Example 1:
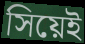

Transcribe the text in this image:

সিয়েই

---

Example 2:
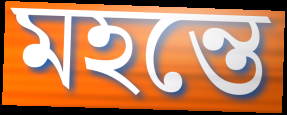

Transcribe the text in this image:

মহন্তে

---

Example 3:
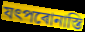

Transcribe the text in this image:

যৎপৰোনাস্তি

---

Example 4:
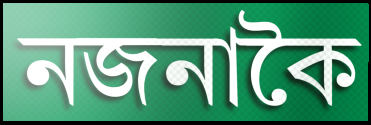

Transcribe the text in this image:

নজনাকৈ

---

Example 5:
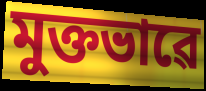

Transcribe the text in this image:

মুক্তভাৱে